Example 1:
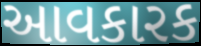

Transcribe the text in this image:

આવકારક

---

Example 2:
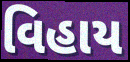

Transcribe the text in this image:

વિહાય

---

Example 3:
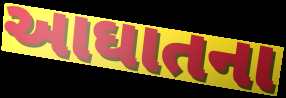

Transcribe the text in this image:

આઘાતના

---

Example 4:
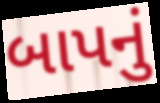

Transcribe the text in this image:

બાપનું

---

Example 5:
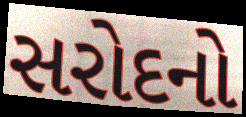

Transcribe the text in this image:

સરોદનો